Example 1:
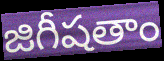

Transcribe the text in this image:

జిగీషతాం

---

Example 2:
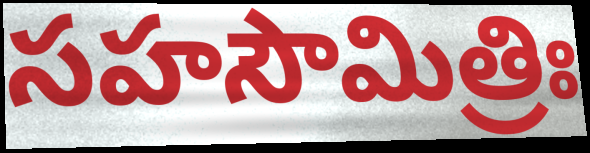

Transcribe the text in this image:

సహసౌమిత్రిః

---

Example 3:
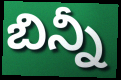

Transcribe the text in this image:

బిన్నీ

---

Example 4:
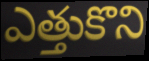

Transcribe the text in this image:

ఎత్తుకొని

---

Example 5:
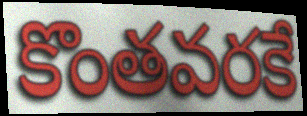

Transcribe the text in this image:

కొంతవరకే